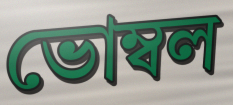
ভোম্বল